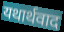
यथार्थवाद